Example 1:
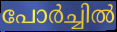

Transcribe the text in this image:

പോർച്ചിൽ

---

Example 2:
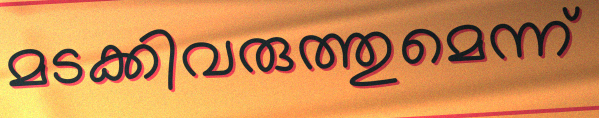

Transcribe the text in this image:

മടക്കിവരുത്തുമെന്ന്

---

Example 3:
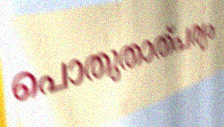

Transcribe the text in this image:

പൊതുതാത്പര്യം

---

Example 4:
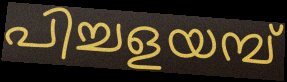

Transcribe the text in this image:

പിച്ചളയമ്പ്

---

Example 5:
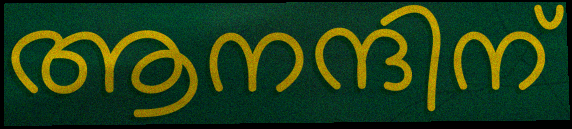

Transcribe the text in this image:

ആനന്ദിന്